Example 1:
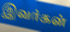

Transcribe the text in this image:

இவர்கள்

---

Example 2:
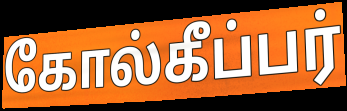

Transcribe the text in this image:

கோல்கீப்பர்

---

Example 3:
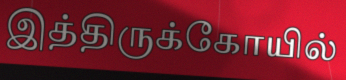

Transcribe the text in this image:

இத்திருக்கோயில்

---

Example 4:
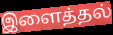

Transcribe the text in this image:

இளைத்தல்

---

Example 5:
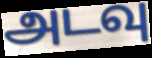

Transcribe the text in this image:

அடவு